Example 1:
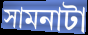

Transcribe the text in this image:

সামনাটা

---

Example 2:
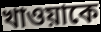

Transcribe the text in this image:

খাওয়াকে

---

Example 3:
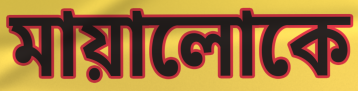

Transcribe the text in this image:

মায়ালোকে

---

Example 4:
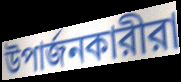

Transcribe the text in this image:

উপার্জনকারীরা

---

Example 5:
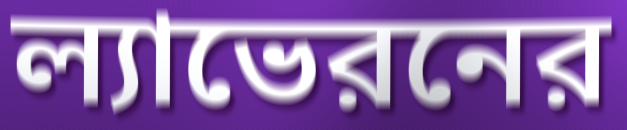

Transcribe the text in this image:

ল্যাভেরনের